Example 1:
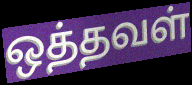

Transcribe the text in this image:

ஒத்தவள்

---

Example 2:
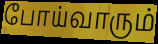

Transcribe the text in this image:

போய்வாரும்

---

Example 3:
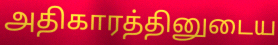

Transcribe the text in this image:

அதிகாரத்தினுடைய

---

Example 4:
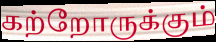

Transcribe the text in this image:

கற்றோருக்கும்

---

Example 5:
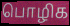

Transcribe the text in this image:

பொழிக